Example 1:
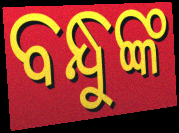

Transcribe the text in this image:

ବନ୍ଧୁଙ୍କ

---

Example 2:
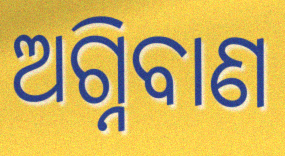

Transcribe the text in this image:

ଅଗ୍ନିବାଣ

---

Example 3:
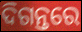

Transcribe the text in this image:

ଦିଗନ୍ତରେ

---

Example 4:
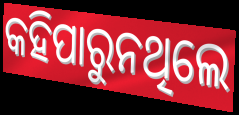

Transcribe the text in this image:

କହିପାରୁନଥିଲେ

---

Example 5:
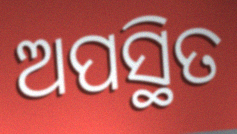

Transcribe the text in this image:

ଅପସ୍ଥିତ